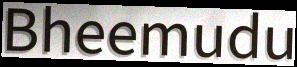
Bheemudu